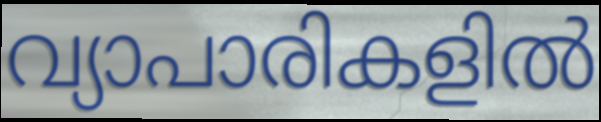
വ്യാപാരികളിൽ